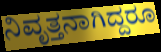
ನಿವೃತ್ತನಾಗಿದ್ದರೂ